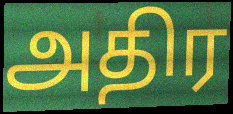
அதிர